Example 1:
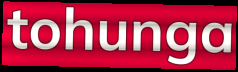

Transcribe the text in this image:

tohunga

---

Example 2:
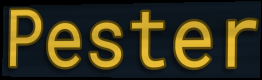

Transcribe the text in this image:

Pester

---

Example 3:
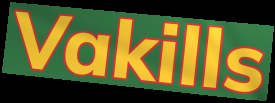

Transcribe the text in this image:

Vakills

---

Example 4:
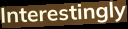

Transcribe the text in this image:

Interestingly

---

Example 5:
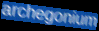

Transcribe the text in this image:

archegonium